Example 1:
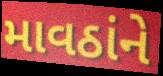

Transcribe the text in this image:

માવઠાંને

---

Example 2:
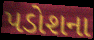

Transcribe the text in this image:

પડોશના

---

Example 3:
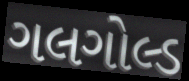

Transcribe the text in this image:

ગલગોલ્ડ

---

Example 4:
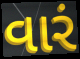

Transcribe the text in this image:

વારં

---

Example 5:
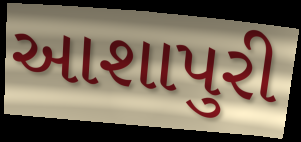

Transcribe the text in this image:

આશાપુરી